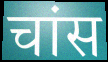
चांस